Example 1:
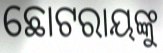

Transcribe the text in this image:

ଛୋଟରାୟଙ୍କୁ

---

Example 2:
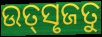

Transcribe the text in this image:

ଉତ୍‌ସୃଜତୁ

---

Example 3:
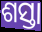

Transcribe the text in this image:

ଶସ୍ତା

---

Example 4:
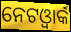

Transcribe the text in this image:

ନେଟଓ୍ବାର୍କ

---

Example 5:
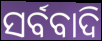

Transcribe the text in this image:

ସର୍ବବାଦି